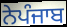
ਨੇਪੰਜਾਬ